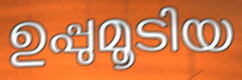
ഉപ്പുമൂടിയ